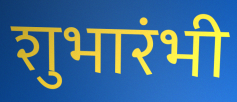
शुभारंभी